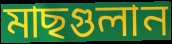
মাছগুলান